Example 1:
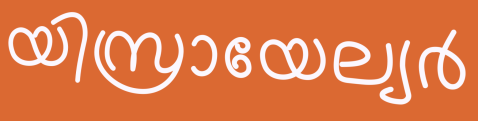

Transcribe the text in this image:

യിസ്രായേല്യർ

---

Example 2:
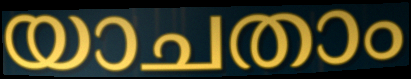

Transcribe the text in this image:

യാചതാം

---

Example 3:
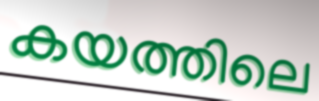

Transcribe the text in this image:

കയത്തിലെ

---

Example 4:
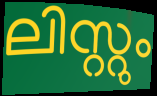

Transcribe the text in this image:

ലിസ്റ്റും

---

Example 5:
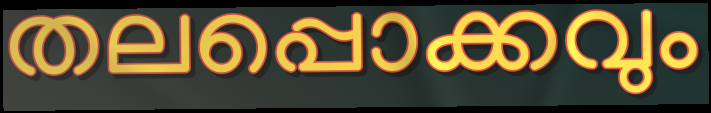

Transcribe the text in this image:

തലപ്പൊക്കവും